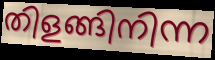
തിളങ്ങിനിന്ന